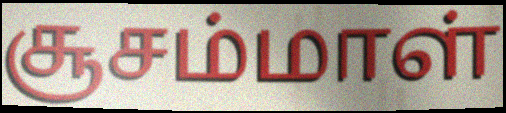
சூசம்மாள்